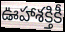
ఊహాశక్తికీ